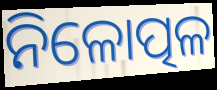
ନିଳୋତ୍ପଳ